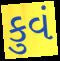
કુવં